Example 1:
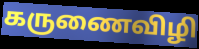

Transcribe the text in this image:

கருணைவிழி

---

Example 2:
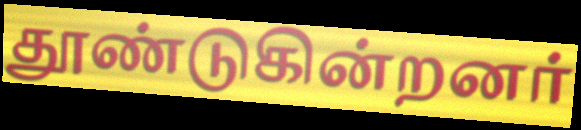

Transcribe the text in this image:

தூண்டுகின்றனர்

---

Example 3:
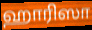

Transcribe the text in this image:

ஹாரிஸா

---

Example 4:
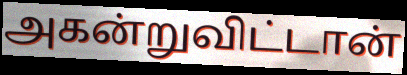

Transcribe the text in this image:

அகன்றுவிட்டான்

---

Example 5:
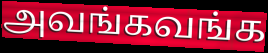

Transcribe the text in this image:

அவங்கவங்க